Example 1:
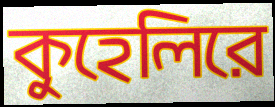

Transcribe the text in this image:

কুহেলিরে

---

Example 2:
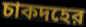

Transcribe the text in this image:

চাকদহের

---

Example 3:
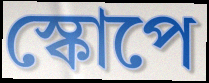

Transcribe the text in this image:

স্কোপে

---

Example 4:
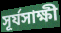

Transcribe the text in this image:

সূর্যসাক্ষী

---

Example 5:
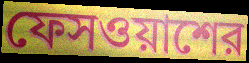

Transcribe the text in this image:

ফেসওয়াশের